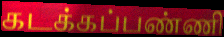
கடக்கப்பண்ணி